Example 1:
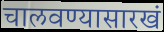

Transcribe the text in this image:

चालवण्यासारखं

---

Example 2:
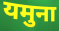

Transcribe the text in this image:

यमुना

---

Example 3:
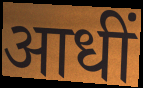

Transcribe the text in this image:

आधीं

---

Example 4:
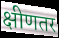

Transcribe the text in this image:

क्षीणतर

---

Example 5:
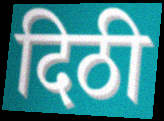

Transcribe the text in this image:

दिठी